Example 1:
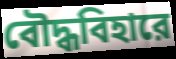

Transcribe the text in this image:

বৌদ্ধবিহারে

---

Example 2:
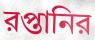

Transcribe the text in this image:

রপ্তানির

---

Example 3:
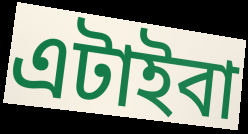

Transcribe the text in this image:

এটাইবা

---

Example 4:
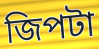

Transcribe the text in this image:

জিপটা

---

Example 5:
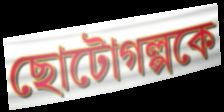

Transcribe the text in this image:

ছোটোগল্পকে